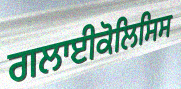
ਗਲਾਈਕੋਲਿਸਿਸ